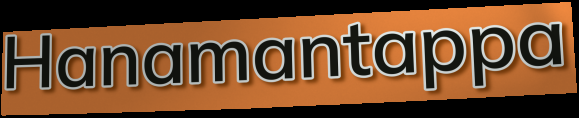
Hanamantappa